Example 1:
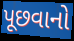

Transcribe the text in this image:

પૂછવાનો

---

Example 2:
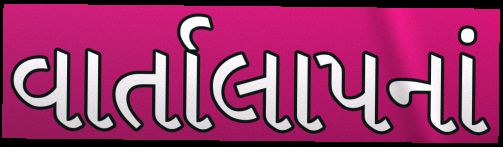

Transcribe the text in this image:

વાર્તાલાપનાં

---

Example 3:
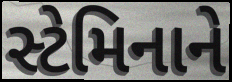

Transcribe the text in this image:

સ્ટેમિનાને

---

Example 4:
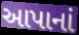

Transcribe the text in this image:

આપાનાં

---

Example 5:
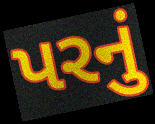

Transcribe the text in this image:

પરનું